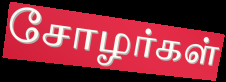
சோழர்கள்